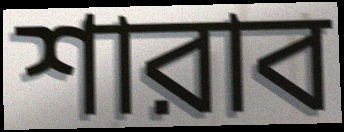
শারাব